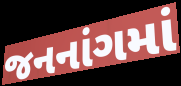
જનનાંગમાં